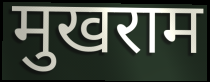
मुखराम